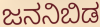
ಜನನಿಬಿಡ